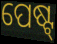
ପେଷ୍ଟ୍